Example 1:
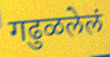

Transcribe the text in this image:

गढुळलेलं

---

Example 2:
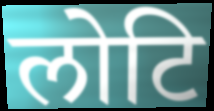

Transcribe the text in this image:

लोटि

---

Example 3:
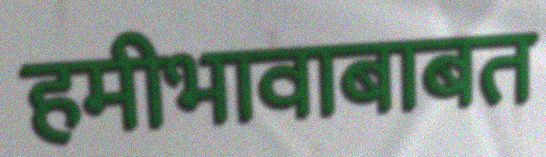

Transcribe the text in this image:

हमीभावाबाबत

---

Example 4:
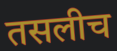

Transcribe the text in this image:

तसलीच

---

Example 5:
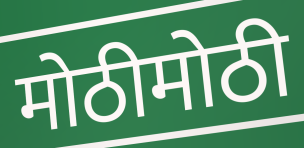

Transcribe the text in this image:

मोठीमोठी